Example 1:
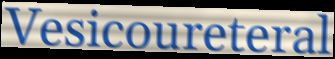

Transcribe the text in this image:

Vesicoureteral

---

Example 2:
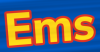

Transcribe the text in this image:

Ems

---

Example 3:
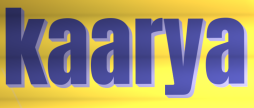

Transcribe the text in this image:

kaarya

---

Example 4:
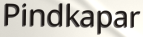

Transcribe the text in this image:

Pindkapar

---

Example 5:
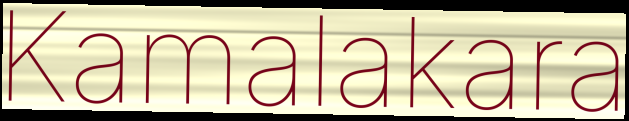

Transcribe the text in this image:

Kamalakara